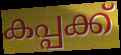
കപ്പക്ക്